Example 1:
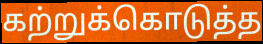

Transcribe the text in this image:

கற்றுக்கொடுத்த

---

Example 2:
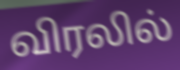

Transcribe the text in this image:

விரலில்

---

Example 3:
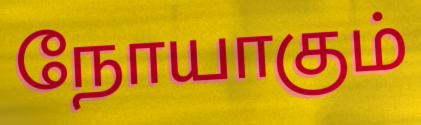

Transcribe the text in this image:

நோயாகும்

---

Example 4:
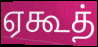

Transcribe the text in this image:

ஏகூத்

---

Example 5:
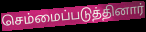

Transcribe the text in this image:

செம்மைப்படுத்தினார்